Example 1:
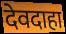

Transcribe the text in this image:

देवदाहा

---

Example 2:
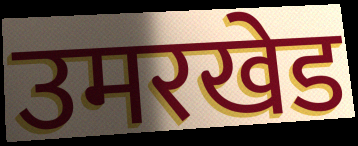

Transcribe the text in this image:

उमरखेड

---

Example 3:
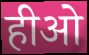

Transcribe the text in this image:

हीओ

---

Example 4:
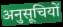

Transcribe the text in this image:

अनुसूचियों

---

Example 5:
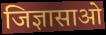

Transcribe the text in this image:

जिज्ञासाओ